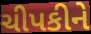
ચીપકીને